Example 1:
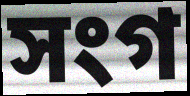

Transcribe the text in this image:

সংগ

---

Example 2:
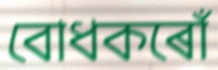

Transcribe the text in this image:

বোধকৰোঁ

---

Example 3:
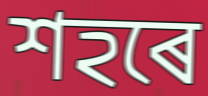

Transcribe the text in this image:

শহৰে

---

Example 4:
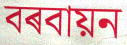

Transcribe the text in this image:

বৰবায়ন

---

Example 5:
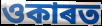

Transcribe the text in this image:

ওকাৰত